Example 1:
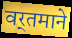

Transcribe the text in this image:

वर्तमाने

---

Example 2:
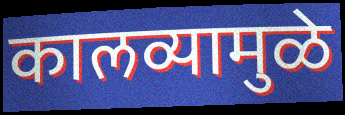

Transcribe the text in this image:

कालव्यामुळे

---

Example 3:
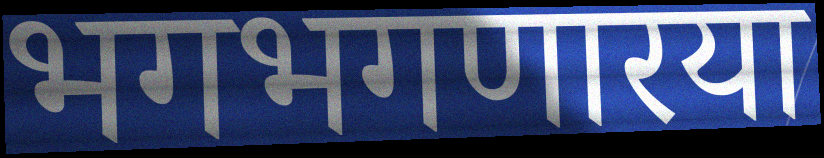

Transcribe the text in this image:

भगभगणारया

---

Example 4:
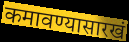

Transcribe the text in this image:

कमावण्यासारखं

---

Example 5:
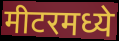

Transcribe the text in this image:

मीटरमध्ये